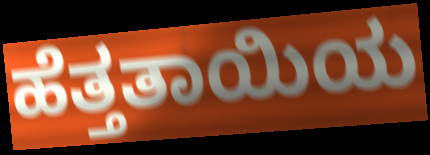
ಹೆತ್ತತಾಯಿಯ